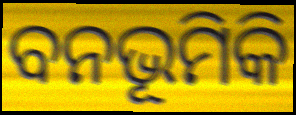
ବନଭୂମିକି